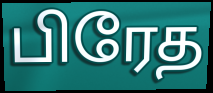
பிரேத